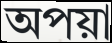
অপয়া